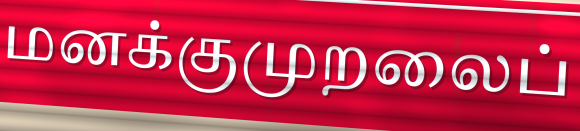
மனக்குமுறலைப்